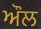
ਔਲ